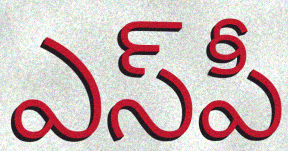
ఎస్‌పీ